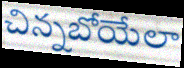
చిన్నబోయేలా